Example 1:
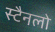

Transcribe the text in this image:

स्टैनलो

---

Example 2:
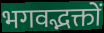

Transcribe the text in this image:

भगवद्भक्तों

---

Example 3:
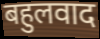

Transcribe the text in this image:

बहुलवाद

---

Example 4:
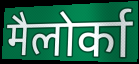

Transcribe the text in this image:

मैलोर्का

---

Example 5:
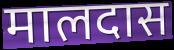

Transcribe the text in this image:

मालदास